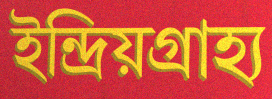
ইন্দ্রিয়গ্রাহ্য